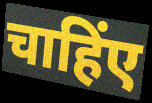
चाहिंए